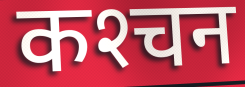
कश्चन